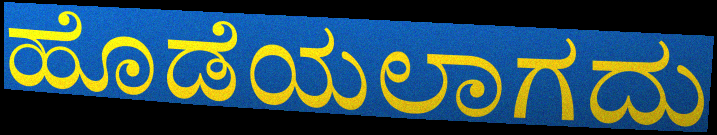
ಹೊಡೆಯಲಾಗದು